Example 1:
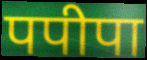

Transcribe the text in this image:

पपीपा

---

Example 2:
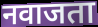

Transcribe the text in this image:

नवाजता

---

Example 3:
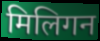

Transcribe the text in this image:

मिलिगन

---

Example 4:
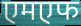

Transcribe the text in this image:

एमएफ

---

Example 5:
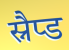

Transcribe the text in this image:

स्नैप्ड